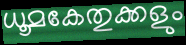
ധൂമകേതുക്കളും